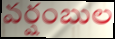
వర్షంబుల